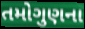
તમોગુણના